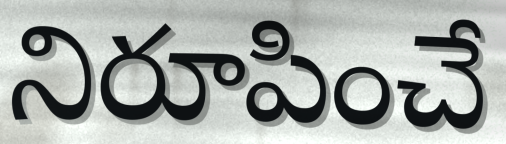
నిరూపించే